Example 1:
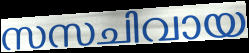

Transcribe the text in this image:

സസചിവായ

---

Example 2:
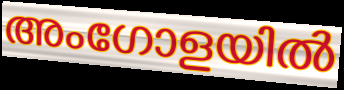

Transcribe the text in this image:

അംഗോളയിൽ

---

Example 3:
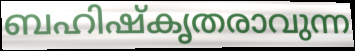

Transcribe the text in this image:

ബഹിഷ്കൃതരാവുന്ന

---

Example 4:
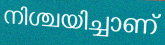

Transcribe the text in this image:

നിശ്ചയിച്ചാണ്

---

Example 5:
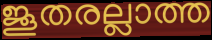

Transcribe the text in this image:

ജൂതരല്ലാത്ത